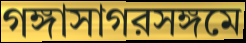
গঙ্গাসাগরসঙ্গমে